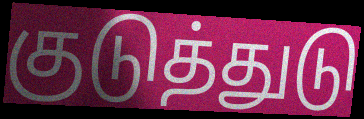
குடுத்துடு